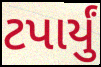
ટપાર્યું